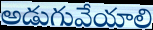
అడుగువేయాలి